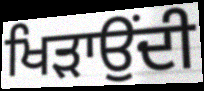
ਖਿੜਾਉਂਦੀ